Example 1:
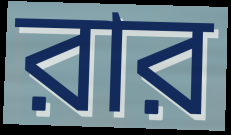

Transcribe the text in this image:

রার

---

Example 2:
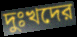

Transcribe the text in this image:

দুঃখদের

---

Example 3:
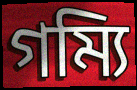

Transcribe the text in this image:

গম্যি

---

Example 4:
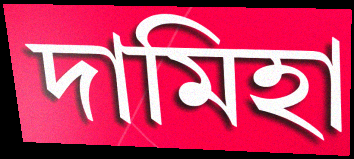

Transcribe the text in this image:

দামিহা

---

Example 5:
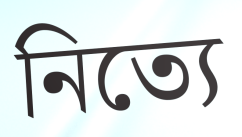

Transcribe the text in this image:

নিত্যে